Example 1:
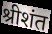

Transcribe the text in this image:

श्रीशंत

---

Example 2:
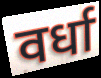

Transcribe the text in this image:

वर्धा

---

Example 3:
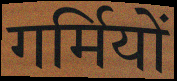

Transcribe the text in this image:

गर्मियों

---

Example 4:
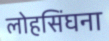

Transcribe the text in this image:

लोहसिंघना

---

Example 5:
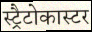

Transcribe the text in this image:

स्ट्रैटोकास्टर